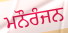
ਮਨੌਰੰਜਨ